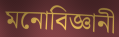
মনোবিজ্ঞানী